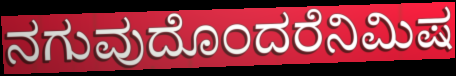
ನಗುವುದೊಂದರೆನಿಮಿಷ